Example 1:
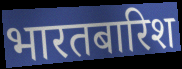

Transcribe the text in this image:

भारतबारिश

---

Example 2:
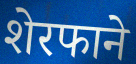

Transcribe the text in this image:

शेरफाने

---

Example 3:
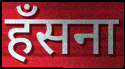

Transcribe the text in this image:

हँसना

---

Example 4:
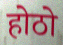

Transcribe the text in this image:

होठो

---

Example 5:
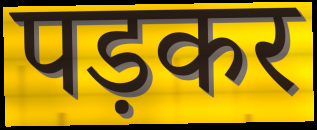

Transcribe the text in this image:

पड़कर